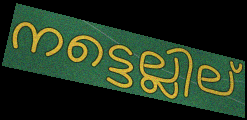
നട്ടെല്ലില്